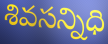
శివసన్నిధి